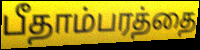
பீதாம்பரத்தை